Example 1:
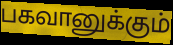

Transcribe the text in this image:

பகவானுக்கும்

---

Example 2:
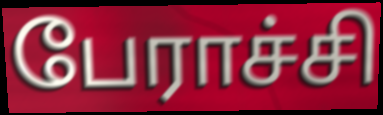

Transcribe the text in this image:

பேராச்சி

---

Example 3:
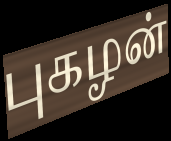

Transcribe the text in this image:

புகழன்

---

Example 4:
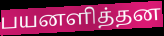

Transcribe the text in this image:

பயனளித்தன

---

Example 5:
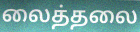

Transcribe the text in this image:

லைத்தலை